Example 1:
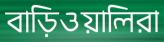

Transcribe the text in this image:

বাড়িওয়ালিরা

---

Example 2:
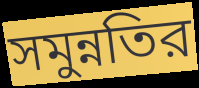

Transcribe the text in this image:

সমুন্নতির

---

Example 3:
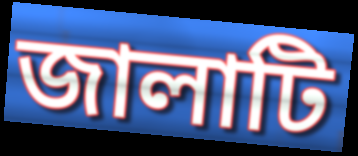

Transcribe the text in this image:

জালাটি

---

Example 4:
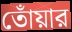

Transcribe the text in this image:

তোঁয়ার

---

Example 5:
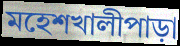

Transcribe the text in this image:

মহেশখালীপাড়া